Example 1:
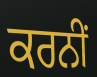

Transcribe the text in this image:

ਕਰਨੀਂ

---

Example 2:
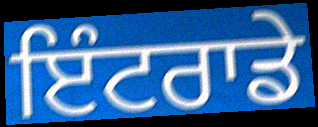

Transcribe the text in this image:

ਇੰਟਰਾਡੇ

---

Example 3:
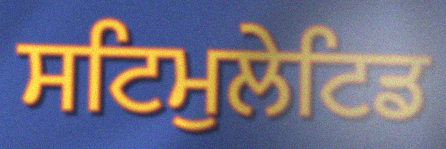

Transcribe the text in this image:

ਸਟਿਮੁਲੇਟਿਡ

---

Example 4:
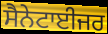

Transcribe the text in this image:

ਸੈਨੇਟਾਈਜਰ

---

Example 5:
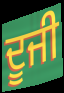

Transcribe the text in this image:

ਦੂਜੀ